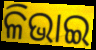
ଳିଭାଇ